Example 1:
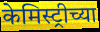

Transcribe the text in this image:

केमिस्ट्रीच्या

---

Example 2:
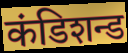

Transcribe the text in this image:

कंडिशन्ड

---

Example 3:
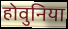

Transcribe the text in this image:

होवुनिया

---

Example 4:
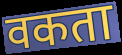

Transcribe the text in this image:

वकता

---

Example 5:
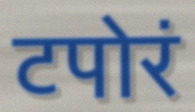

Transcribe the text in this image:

टपोरं